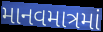
માનવમાત્રમાં